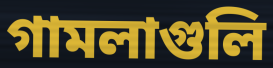
গামলাগুলি